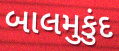
બાલમુકુંદ